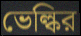
ভেল্কির